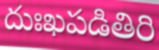
దుఃఖపడితిరి